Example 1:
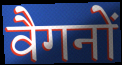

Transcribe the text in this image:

वैगनों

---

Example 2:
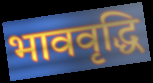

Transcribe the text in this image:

भाववृद्धि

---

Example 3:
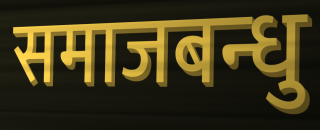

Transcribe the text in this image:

समाजबन्धु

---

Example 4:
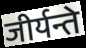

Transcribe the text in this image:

जीर्यन्ते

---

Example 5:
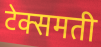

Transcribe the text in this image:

टेक्समती